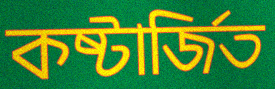
কষ্টার্জিত